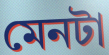
মেনটা